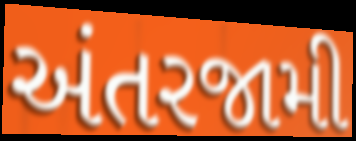
અંતરજામી